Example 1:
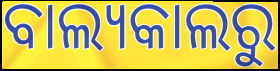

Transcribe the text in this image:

ବାଲ୍ୟକାଲରୁ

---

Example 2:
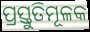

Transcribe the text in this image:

ପ୍ରସ୍ତୁତିମୂଳକ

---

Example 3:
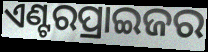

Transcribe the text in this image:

ଏଣ୍ଟରପ୍ରାଇଜର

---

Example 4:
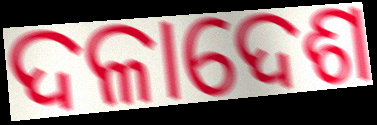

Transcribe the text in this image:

ଦଳାଦେଶ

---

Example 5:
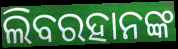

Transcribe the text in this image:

ଲିବରହାନଙ୍କ